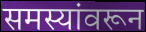
समस्यांवरून